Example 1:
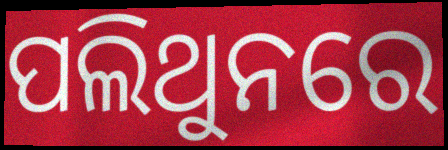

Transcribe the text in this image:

ପଲିଥୁନରେ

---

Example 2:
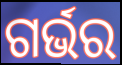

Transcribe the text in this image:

ଗର୍ଭର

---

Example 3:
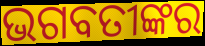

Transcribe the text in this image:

ଭଗବତୀଙ୍କର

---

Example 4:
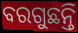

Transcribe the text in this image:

ବରଗୁଛନ୍ତି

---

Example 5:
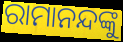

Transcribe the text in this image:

ରାମାନନ୍ଦଙ୍କୁ